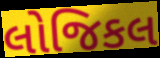
લોજિકલ